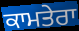
ਕਾਮਤੇਰਾ